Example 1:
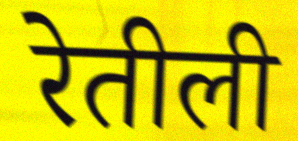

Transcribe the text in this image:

रेतीली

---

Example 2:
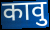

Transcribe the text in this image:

कावु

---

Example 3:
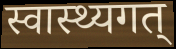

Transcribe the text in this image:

स्वास्थ्यगत्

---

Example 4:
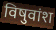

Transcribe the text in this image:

विषुवांश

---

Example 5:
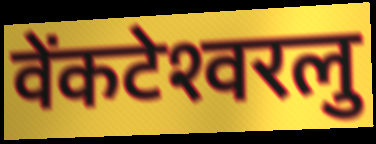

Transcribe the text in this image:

वेंकटेश्वरलु